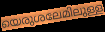
യെരുശലേമിലുള്ള